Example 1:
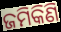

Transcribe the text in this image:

ଜମିକିଣି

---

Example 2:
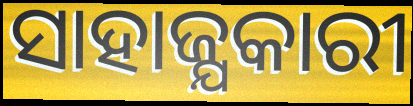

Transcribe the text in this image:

ସାହାଜ୍ଯକାରୀ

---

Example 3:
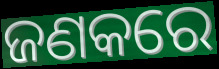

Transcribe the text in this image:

ଜଣକରେ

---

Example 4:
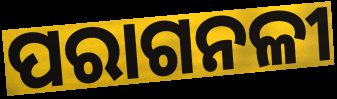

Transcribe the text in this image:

ପରାଗନଳୀ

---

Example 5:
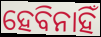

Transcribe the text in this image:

ହେବିନାହିଁ